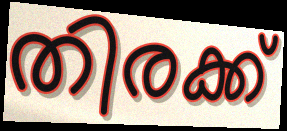
തിരക്ക്